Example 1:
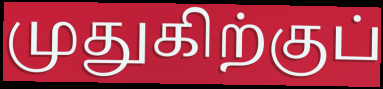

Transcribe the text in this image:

முதுகிற்குப்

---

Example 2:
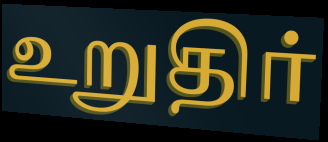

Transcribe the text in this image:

உறுதிர்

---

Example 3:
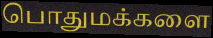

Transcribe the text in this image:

பொதுமக்களை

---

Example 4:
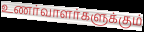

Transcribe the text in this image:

உணர்வாளர்களுக்கும்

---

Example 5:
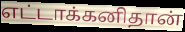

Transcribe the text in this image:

எட்டாக்கனிதான்